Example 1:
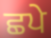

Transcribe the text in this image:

ਛਪੇ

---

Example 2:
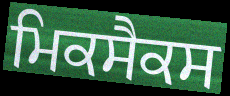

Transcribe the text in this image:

ਮਿਕਸੈਕਸ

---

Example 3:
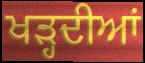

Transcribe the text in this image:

ਖੜ੍ਹਦੀਆਂ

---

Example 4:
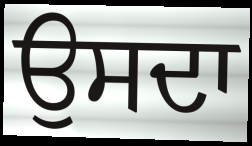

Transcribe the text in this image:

ਉਸਦਾ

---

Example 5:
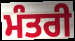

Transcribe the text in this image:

ਮੰਤਰੀ